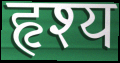
हृश्य